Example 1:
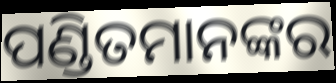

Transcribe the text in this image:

ପଣ୍ଡିତମାନଙ୍କର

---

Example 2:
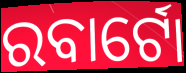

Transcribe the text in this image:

ରବାର୍ଟୋ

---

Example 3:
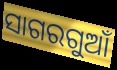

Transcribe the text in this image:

ସାଗରଗୁଆଁ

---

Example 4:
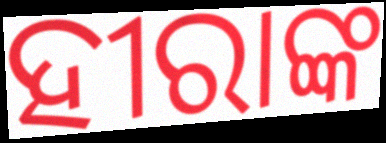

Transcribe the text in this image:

ହୀରାଙ୍କ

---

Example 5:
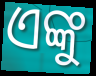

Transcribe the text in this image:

ଏଙ୍କୁ